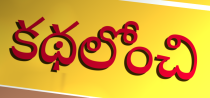
కథలోంచి